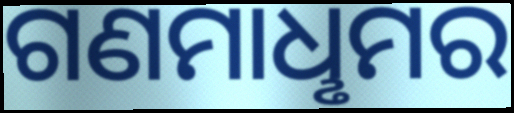
ଗଣମାଧୢମର